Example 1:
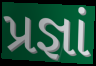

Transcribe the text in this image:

પ્રજ્ઞાં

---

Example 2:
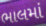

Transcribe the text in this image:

ભાલમાં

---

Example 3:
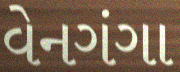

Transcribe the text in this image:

વેનગંગા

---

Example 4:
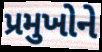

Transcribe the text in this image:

પ્રમુખોને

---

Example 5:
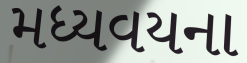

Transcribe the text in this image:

મધ્યવયના